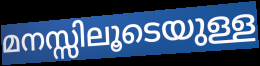
മനസ്സിലൂടെയുള്ള